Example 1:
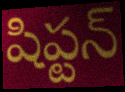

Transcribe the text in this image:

షిప్టన్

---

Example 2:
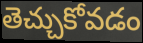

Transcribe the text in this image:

తెచ్చుకోవడం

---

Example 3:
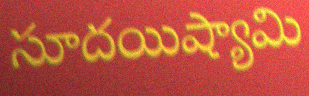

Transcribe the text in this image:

సూదయిష్యామి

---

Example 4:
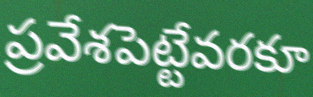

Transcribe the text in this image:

ప్రవేశపెట్టేవరకూ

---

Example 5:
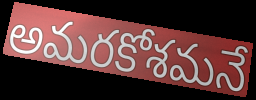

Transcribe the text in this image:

అమరకోశమనే